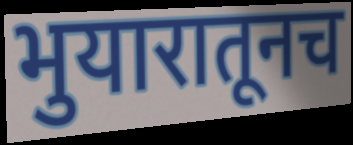
भुयारातूनच